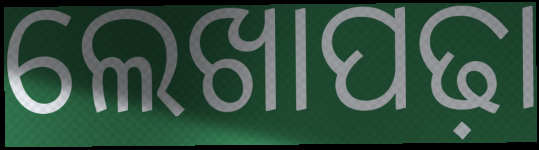
ଲେଖାପଢ଼ା